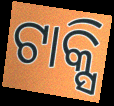
ଟାକ୍ସି